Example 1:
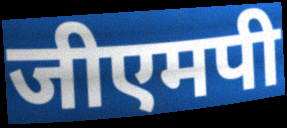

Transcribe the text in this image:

जीएमपी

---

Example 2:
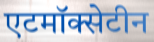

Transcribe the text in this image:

एटमॉक्सेटीन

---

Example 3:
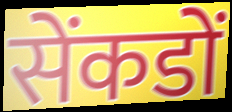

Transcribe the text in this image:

सेंकडों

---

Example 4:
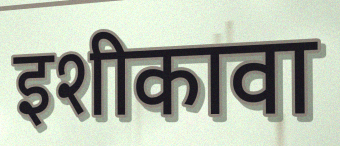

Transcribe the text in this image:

इशीकावा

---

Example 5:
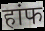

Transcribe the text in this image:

हांफ